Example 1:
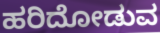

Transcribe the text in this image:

ಹರಿದೋಡುವ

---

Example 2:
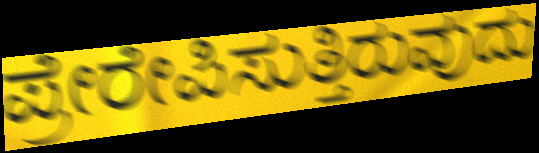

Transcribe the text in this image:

ಪ್ರೇರೇಪಿಸುತ್ತಿರುವುದು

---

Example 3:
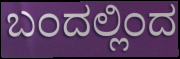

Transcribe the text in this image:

ಬಂದಲ್ಲಿಂದ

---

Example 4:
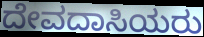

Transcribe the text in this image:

ದೇವದಾಸಿಯರು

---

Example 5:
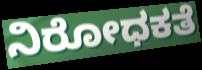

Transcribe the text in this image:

ನಿರೋಧಕತೆ